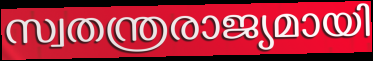
സ്വതന്ത്രരാജ്യമായി